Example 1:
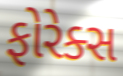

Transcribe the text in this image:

ફોરેક્સ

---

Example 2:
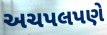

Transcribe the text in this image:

અચપલપણે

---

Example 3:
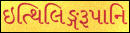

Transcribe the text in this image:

ઇત્થિલિઙ્ગરૂપાનિ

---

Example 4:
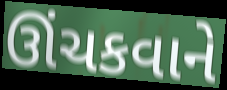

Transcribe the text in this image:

ઊંચકવાને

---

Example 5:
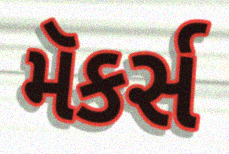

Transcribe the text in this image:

મૅકર્સ